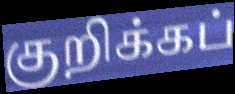
குறிக்கப்